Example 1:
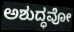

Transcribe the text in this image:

ಅಶುದ್ಧವೋ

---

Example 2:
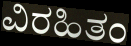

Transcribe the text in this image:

ವಿರಹಿತಂ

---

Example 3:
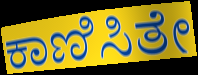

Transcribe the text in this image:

ಕಾಣಿಸಿತೇ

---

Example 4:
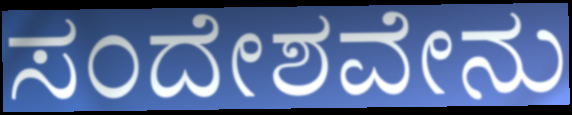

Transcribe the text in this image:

ಸಂದೇಶವೇನು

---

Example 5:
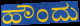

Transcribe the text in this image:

ಹೌಂದು